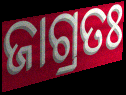
ଜାଗ୍ରତଃ